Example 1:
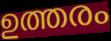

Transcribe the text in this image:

ഉത്തരം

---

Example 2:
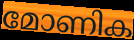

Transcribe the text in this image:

മോണിക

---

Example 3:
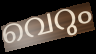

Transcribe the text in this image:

വെറും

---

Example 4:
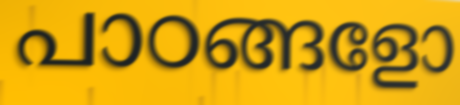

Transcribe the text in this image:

പാഠങ്ങളോ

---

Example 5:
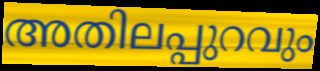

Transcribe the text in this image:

അതിലപ്പുറവും